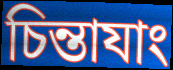
চিন্তাযাং